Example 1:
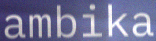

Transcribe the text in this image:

ambika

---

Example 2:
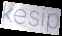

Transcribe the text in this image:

kesip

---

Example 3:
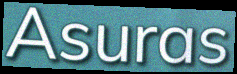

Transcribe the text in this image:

Asuras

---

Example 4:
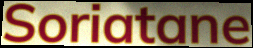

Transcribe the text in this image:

Soriatane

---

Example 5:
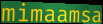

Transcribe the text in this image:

mimaamsa